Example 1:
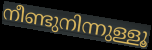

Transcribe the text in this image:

നീണ്ടുനിന്നുള്ളൂ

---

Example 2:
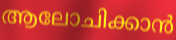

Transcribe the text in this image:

ആലോചിക്കാൻ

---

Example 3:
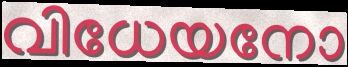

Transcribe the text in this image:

വിധേയനോ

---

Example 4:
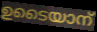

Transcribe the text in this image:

ഉടൈയാന്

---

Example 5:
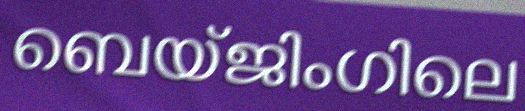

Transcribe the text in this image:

ബെയ്ജിംഗിലെ